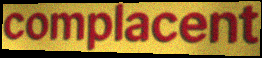
complacent